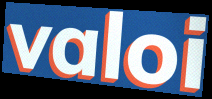
valoi